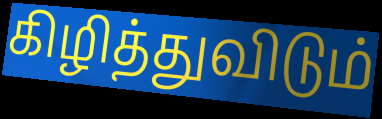
கிழித்துவிடும்